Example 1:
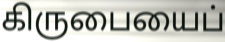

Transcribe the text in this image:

கிருபையைப்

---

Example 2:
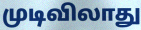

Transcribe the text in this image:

முடிவிலாது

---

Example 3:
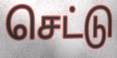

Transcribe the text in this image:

செட்டு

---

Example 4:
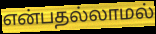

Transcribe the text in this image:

என்பதல்லாமல்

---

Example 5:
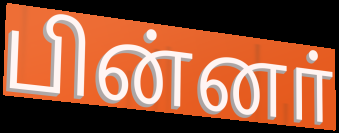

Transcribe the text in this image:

பின்னர்